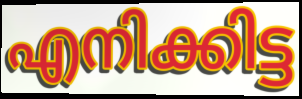
എനിക്കിട്ട